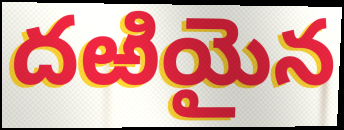
దఱియైన